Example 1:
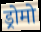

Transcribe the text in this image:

ड्रोमो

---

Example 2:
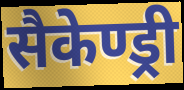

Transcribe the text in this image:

सैकेण्ड्री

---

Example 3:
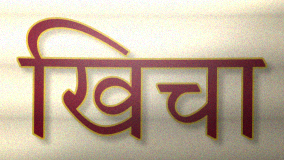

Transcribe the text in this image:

खिचा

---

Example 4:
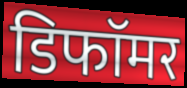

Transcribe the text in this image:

डिफॉमर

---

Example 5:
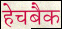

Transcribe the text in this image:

हेचबैक